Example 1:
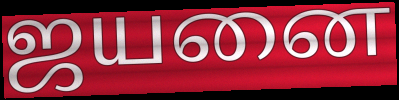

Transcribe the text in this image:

ஜயனை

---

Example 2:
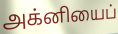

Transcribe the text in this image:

அக்னியைப்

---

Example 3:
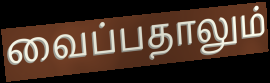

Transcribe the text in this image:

வைப்பதாலும்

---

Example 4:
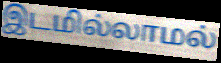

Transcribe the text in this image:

இடமில்லாமல்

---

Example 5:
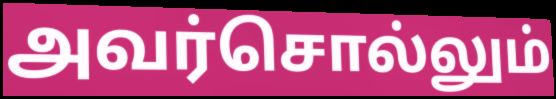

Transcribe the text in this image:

அவர்சொல்லும்